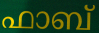
ഫാബ്